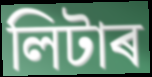
লিটাৰ